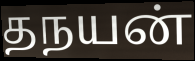
தநயன்